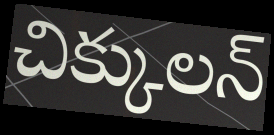
చిక్కులన్